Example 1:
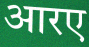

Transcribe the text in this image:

आरए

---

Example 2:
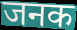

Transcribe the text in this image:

जनक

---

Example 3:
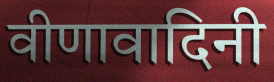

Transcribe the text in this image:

वीणावादिनी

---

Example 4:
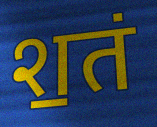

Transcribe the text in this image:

श॒तं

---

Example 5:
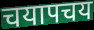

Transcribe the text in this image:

चयापचय